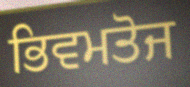
ਭਿਵਮਤੋਜ